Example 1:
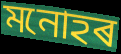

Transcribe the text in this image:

মনোহৰ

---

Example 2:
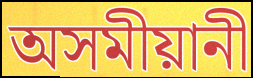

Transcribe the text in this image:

অসমীয়ানী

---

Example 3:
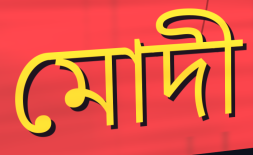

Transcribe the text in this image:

মোদী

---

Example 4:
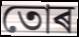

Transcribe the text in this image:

তোৰ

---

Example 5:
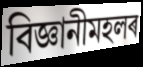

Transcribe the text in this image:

বিজ্ঞানীমহলৰ